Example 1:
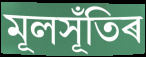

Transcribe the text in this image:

মূলসূঁতিৰ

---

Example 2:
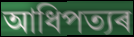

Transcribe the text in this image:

আধিপত্যৰ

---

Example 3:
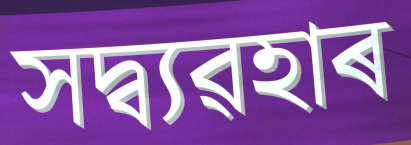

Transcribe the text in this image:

সদ্ব্যৱহাৰ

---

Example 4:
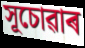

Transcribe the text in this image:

সূচোৱাৰ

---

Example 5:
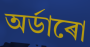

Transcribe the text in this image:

অৰ্ডাৰো